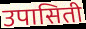
उपासिती